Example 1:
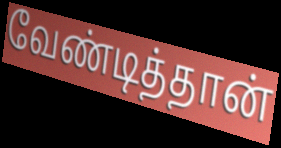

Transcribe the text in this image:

வேண்டித்தான்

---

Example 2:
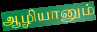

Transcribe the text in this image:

ஆழியானும்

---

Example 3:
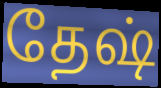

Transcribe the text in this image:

தேஷ்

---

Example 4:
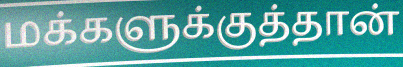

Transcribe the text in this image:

மக்களுக்குத்தான்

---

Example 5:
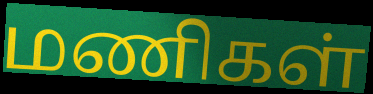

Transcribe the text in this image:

மணிகள்